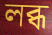
লব্ধ